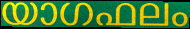
യാഗഫലം